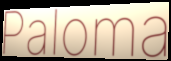
Paloma